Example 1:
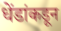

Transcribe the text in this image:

धेंडांकडून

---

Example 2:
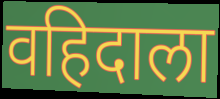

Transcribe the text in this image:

वहिदाला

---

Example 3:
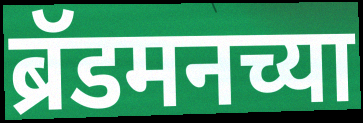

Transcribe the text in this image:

ब्रॅडमनच्या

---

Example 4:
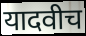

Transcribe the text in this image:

यादवीच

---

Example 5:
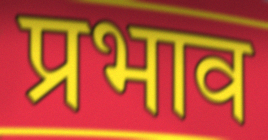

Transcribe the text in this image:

प्रभाव